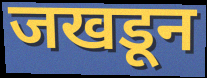
जखडून